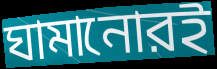
ঘামানোরই